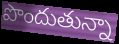
పొందుతున్నా